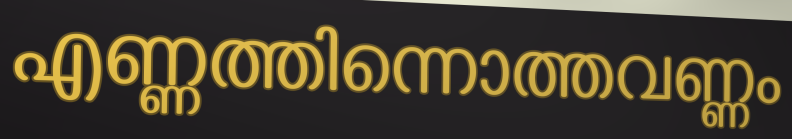
എണ്ണത്തിന്നൊത്തവണ്ണം